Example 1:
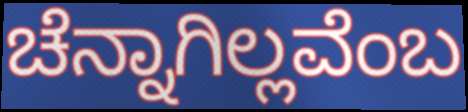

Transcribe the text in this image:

ಚೆನ್ನಾಗಿಲ್ಲವೆಂಬ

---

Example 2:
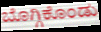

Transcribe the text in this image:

ಬೊಗ್ಗಿಕೊಂಡು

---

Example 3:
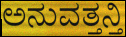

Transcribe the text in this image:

ಅನುವತ್ತನ್ತಿ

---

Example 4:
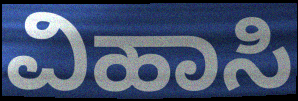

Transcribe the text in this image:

ವಿಹಾಸಿ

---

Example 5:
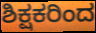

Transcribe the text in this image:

ಶಿಕ್ಷಕರಿಂದ